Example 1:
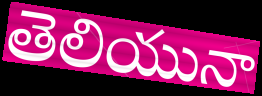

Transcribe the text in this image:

తెలియునా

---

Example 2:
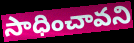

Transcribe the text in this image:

సాధించావని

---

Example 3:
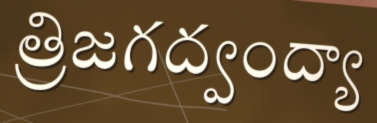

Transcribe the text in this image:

త్రిజగద్వంద్యా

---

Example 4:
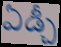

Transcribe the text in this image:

ఏడ్చీ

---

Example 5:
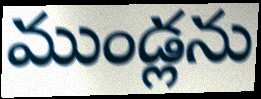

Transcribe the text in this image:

ముండ్లను